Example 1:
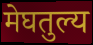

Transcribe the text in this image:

मेघतुल्य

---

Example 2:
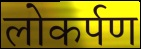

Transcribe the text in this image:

लोकर्पण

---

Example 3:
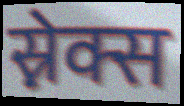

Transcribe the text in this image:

स्नेक्स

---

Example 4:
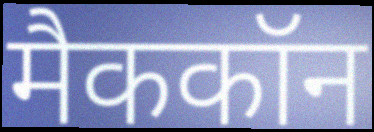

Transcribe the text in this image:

मैककॉन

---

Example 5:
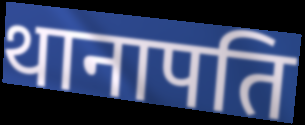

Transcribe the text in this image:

थानापति